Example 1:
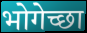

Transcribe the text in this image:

भोगेच्छा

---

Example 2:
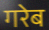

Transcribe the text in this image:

गरेब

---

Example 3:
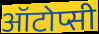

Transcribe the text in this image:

ऑटोप्सी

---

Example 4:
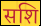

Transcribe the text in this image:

सशि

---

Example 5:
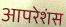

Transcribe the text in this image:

आपरेशंस